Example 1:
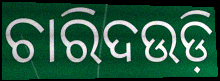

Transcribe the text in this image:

ଚାରିଦଉଡ଼ି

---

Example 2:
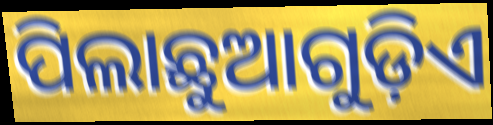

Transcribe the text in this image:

ପିଲାଛୁଆଗୁଡ଼ିଏ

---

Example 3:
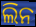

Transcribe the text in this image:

ଲିନ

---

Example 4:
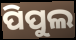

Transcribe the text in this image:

ପିପୁଲ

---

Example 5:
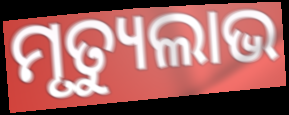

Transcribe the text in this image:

ମୃତ୍ୟୁଲାଭ